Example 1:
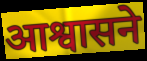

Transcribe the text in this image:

आश्वासने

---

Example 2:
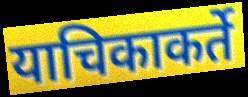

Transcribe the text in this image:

याचिकाकर्ते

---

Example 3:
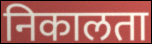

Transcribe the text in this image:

निकालता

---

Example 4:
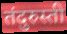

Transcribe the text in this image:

तंदुरुस्ती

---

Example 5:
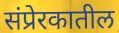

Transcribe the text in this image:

संप्रेरकातील